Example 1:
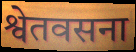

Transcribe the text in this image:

श्वेतवसना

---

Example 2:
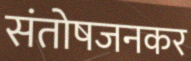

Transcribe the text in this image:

संतोषजनकर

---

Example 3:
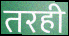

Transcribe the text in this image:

तरही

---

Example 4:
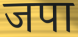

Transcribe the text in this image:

जपा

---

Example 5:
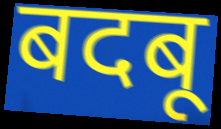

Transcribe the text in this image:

बदबू